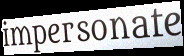
impersonate